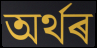
অৰ্থৰ